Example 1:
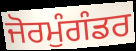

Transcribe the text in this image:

ਜੋਰਮੁੰਗੰਡਰ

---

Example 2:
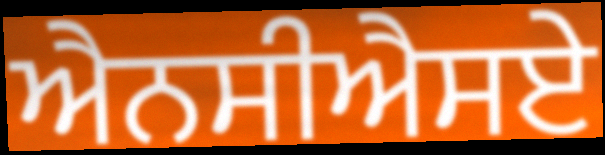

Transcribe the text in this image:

ਐਨਸੀਐਸਏ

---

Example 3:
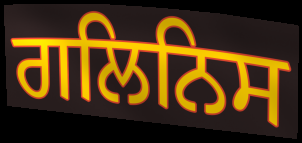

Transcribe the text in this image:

ਗਲਿਨਿਸ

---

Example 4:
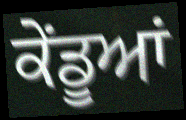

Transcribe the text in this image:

ਕੇਂਡੂਆਂ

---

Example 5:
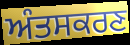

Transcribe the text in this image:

ਅੰਤਸਕਰਣ